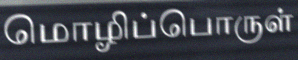
மொழிப்பொருள்